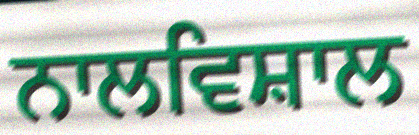
ਨਾਲਵਿਸ਼ਾਲ